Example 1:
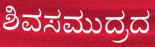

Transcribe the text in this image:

ಶಿವಸಮುದ್ರದ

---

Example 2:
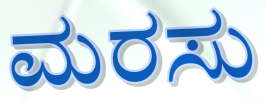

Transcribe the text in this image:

ಮರಸು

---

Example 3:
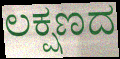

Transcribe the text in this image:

ಲಕ್ಷಣದ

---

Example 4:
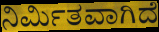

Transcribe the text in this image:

ನಿರ್ಮಿತವಾಗಿದೆ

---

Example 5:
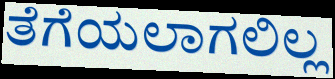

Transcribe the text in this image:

ತೆಗೆಯಲಾಗಲಿಲ್ಲ